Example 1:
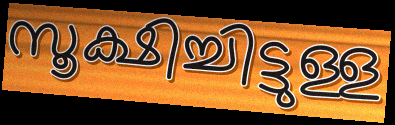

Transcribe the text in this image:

സൂക്ഷിച്ചിട്ടുള്ള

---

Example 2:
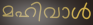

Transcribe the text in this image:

മഹിവാൾ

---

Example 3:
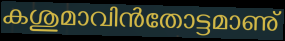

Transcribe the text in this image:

കശുമാവിൻതോട്ടമാണു്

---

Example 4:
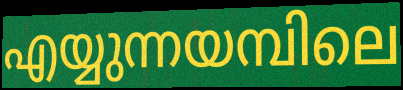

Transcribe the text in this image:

എയ്യുന്നയമ്പിലെ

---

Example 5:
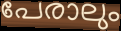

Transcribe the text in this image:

പേരാലും